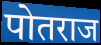
पोतराज